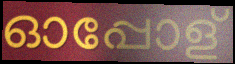
ഓപ്പോള്